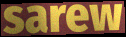
sarew